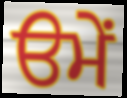
ੳਮੇਂ